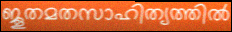
ജൂതമതസാഹിത്യത്തിൽ